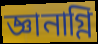
জ্ঞানাগ্নি